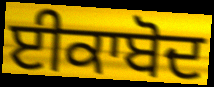
ਈਕਾਬੋਦ